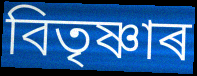
বিতৃষ্ণাৰ